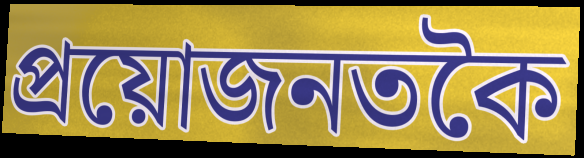
প্ৰয়োজনতকৈ